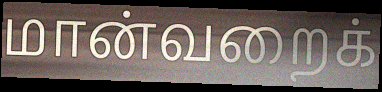
மான்வறைக்